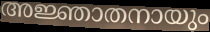
അജ്ഞാതനായും